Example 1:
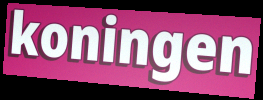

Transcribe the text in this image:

koningen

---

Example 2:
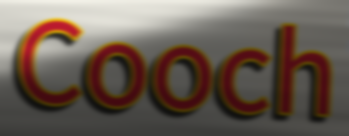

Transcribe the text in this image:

Cooch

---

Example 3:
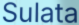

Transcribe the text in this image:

Sulata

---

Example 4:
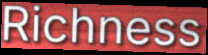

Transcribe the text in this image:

Richness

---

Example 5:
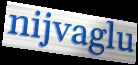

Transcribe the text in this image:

nijvaglu